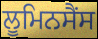
ਲੂਮਿਨਸੈਂਸ